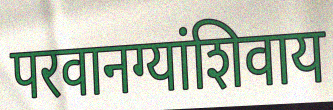
परवानग्यांशिवाय